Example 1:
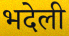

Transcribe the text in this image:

भदेली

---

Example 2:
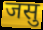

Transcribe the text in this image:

जसु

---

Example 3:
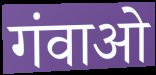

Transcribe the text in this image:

गंवाओ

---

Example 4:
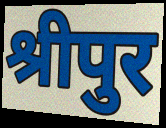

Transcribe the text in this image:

श्रीपुर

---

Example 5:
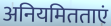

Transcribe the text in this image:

अनियमितताएं